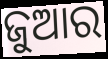
ଜୁଆର